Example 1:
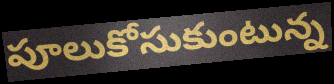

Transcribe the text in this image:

పూలుకోసుకుంటున్న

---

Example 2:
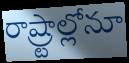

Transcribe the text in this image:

రాష్ర్టాల్లోనూ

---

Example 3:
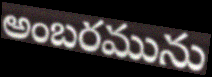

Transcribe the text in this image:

అంబరమును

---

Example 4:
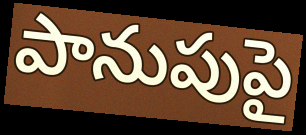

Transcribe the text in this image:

పానుపుపై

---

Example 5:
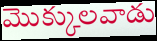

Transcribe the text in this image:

మొక్కులవాడు